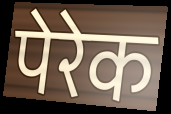
पेरेक